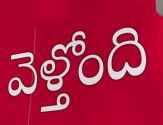
వెళ్తోంది